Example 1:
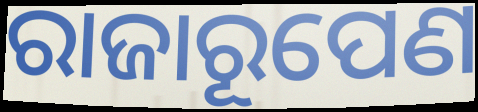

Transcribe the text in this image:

ରାଜାରୂପେଣ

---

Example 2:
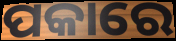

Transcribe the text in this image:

ପକାରେ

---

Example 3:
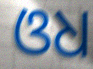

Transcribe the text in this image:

ଓଧ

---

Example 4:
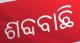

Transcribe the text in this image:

ଶବ୍ଦବାଛି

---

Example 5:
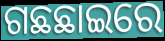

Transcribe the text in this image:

ଗଛଛାଇରେ